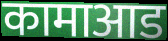
कामाआड